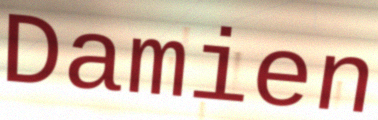
Damien